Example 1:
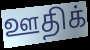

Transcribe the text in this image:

ஊதிக்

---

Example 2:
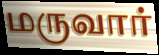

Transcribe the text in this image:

மருவார்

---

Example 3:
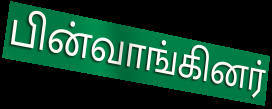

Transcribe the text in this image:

பின்வாங்கினர்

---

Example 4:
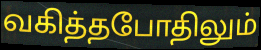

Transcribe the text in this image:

வகித்தபோதிலும்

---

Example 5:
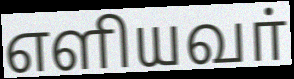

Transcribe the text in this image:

எளியவர்